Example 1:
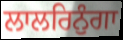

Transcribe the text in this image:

ਲਾਲਰਿਨੁੰਗਾ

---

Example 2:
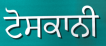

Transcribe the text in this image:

ਟੋਸਕਾਨੀ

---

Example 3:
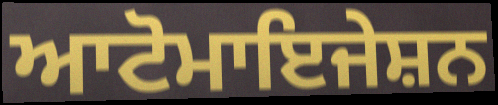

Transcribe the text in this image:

ਆਟੋਮਾਇਜੇਸ਼ਨ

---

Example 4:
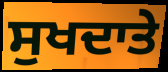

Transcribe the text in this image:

ਸੁਖਦਾਤੇ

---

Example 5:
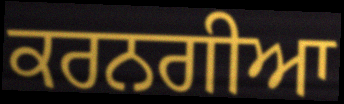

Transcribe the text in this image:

ਕਰਨਗੀਆ